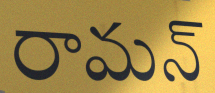
రామన్